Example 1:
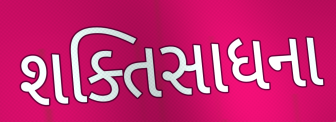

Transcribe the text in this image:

શક્તિસાધના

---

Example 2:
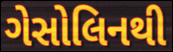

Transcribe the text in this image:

ગેસોલિનથી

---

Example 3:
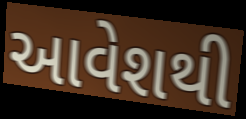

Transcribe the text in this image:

આવેશથી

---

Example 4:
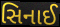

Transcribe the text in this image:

સિનાઈ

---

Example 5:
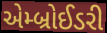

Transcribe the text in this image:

એમ્બ્રોઈડરી